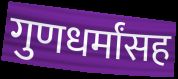
गुणधर्मांसह